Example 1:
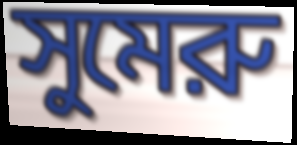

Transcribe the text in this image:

সুমেৰু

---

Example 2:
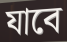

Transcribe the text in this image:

যাবে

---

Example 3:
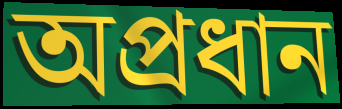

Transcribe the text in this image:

অপ্ৰধান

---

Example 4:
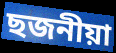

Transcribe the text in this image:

ছজনীয়া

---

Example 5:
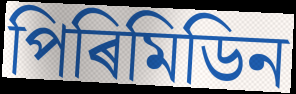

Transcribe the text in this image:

পিৰিমিডিন